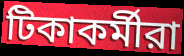
টিকাকর্মীরা